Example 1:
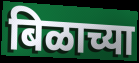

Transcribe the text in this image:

बिळाच्या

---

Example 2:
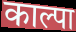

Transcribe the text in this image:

काल्पा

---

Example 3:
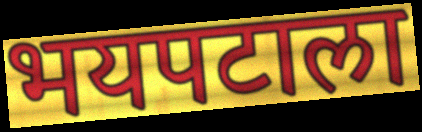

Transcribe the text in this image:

भयपटाला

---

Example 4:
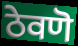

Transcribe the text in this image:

ठेवणॆ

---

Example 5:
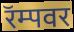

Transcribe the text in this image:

रॅम्पवर